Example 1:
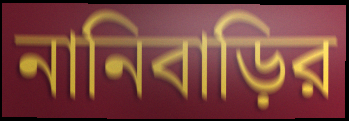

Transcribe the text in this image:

নানিবাড়ির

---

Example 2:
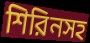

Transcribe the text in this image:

শিরিনসহ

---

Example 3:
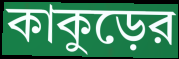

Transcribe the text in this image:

কাকুড়ের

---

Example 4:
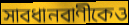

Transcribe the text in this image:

সাবধানবাণীকেও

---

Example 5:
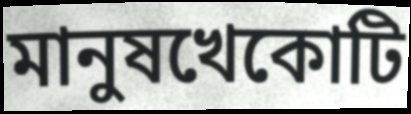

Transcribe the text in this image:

মানুষখেকোটি